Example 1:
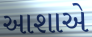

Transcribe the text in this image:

આશાએ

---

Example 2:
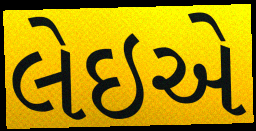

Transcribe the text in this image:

લેઇએ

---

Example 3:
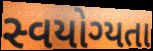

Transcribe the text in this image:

સ્વયોગ્યતા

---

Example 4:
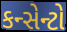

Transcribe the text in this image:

કન્સેન્ટો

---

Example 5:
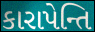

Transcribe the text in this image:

કારાપેન્તિ